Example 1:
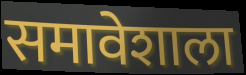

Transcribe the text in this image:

समावेशाला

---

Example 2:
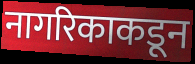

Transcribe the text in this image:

नागरिकाकडून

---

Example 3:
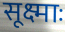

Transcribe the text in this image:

सूक्ष्माः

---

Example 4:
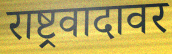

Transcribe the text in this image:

राष्ट्रवादावर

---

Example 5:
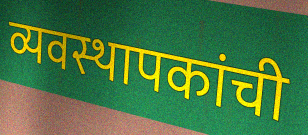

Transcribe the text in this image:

व्यवस्थापकांची